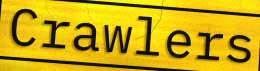
Crawlers